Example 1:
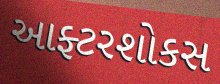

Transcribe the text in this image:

આફ્ટરશોકસ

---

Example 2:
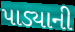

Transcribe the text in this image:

પાડ્યાની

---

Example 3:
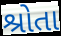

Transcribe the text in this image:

શ્રોતા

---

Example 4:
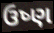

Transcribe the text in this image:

ઉષ્ણ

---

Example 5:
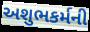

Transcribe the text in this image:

અશુભકર્મની